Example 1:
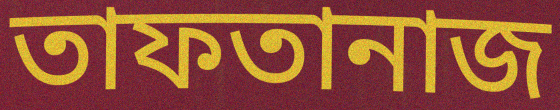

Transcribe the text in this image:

তাফতানাজ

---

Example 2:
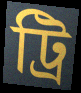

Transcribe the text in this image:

ট্রি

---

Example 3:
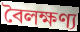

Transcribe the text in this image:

বৈলক্ষণ্য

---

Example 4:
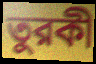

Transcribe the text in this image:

তুরকী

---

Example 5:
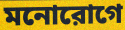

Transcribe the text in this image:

মনোরোগে